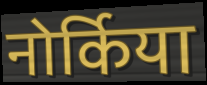
नोर्किया